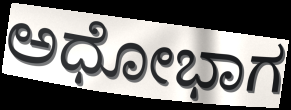
ಅಧೋಭಾಗ